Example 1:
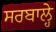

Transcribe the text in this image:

ਸਰਬਾਲ੍ਹੇ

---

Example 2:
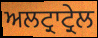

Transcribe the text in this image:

ਅਲਟ੍ਰਾਟ੍ਰੇਲ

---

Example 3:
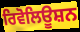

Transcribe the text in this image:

ਰਿਵੋਲਿਊਸ਼ਨ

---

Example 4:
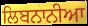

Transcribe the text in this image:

ਲਿਬਨਾਨੀਆ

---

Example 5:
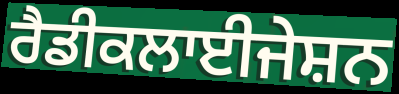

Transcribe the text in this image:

ਰੈਡੀਕਲਾਈਜੇਸ਼ਨ